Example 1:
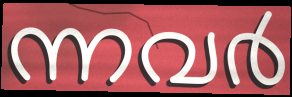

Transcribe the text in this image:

ന്നവർ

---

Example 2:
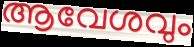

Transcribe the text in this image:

ആവേശവും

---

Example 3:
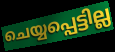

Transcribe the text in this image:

ചെയ്യപ്പെട്ടില്ല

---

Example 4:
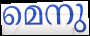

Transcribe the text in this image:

മെനു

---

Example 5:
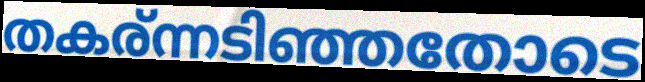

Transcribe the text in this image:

തകര്ന്നടിഞ്ഞതോടെ